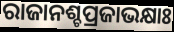
ରାଜାନଶ୍ଚପ୍ରଜାଭକ୍ଷାଃ